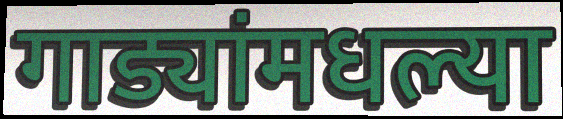
गाड्यांमधल्या